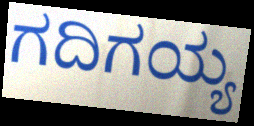
ಗದಿಗಯ್ಯ